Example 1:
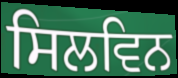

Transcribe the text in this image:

ਸਿਲਵਿਨ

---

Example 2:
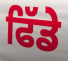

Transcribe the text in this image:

ਫਿੱਡੇ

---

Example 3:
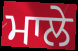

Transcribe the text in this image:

ਮਾਲੇ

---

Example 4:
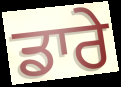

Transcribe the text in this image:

ਡਾਰੇ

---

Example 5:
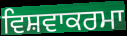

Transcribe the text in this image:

ਵਿਸ਼ਵਾਕਰਮਾ